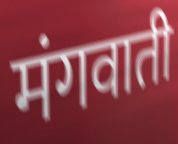
मंगवाती